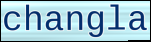
changla